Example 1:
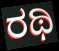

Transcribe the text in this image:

ರಥಿ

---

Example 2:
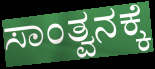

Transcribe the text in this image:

ಸಾಂತ್ವನಕ್ಕೆ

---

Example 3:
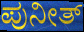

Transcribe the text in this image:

ಪುನೀತ್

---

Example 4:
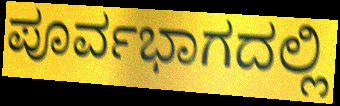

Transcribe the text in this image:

ಪೂರ್ವಭಾಗದಲ್ಲಿ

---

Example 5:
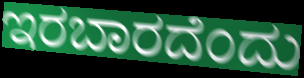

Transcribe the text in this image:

ಇರಬಾರದೆಂದು